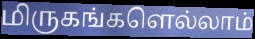
மிருகங்களெல்லாம்